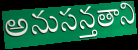
అనుసన్తతాని